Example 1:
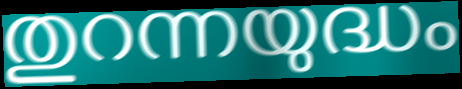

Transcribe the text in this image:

തുറന്നയുദ്ധം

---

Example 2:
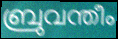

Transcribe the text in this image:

ബ്രുവന്തീം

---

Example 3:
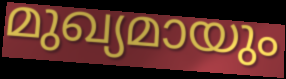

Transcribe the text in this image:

മുഖ്യമായും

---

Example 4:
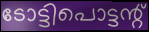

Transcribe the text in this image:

ടോട്ടിപൊട്ടന്റ്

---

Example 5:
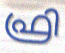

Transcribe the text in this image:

ഫ്രി